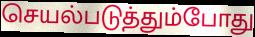
செயல்படுத்தும்போது